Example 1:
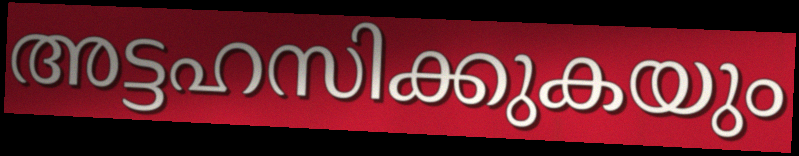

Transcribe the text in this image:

അട്ടഹസിക്കുകയും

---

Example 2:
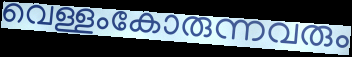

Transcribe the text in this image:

വെള്ളംകോരുന്നവരും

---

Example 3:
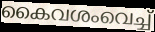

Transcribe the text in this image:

കൈവശംവെച്ച്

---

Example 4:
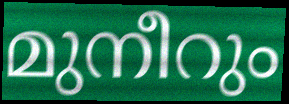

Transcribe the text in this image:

മുനീറും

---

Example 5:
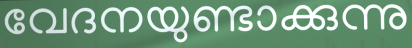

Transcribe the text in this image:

വേദനയുണ്ടാക്കുന്നു